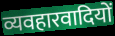
व्यवहारवादियों